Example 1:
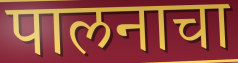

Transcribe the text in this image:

पालनाचा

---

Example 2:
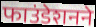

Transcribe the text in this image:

फाउंडेशनने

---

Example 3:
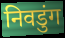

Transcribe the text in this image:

निवडुंग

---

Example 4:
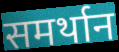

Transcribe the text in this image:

समर्थान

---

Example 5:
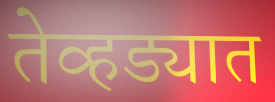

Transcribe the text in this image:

तेव्हड्यात